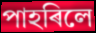
পাহৰিলে